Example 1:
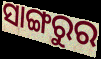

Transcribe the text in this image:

ସାଙ୍ଗରୁର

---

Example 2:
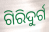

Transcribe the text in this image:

ଗିରିଦୁର୍ଗ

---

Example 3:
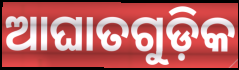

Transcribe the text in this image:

ଆଘାତଗୁଡ଼ିକ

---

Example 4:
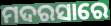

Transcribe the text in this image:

ମଦରସାରେ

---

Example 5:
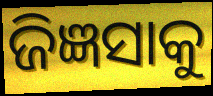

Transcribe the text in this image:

ଜିଜ୍ଞସାକୁ